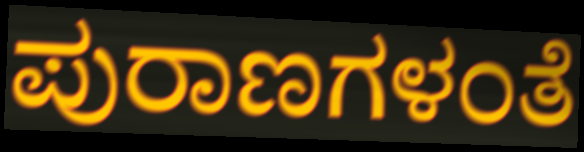
ಪುರಾಣಗಳಂತೆ